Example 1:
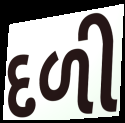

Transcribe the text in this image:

દળી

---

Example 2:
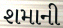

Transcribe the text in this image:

શમાની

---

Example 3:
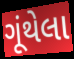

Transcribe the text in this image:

ગૂંથેલા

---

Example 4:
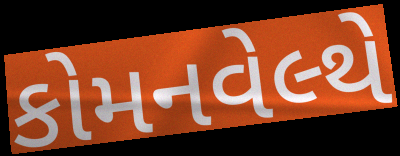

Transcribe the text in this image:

કોમનવેલ્થે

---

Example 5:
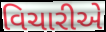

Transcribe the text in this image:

વિચારીએ